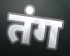
तंग